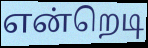
என்றெடி